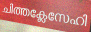
ചിത്തക്ലേസേഹി